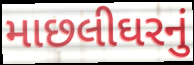
માછલીઘરનું